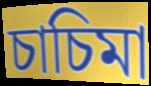
চাচিমা